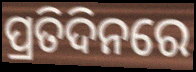
ପ୍ରତିଦିନରେ